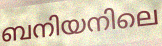
ബനിയനിലെ